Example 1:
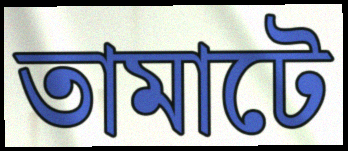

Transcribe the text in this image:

তামাটে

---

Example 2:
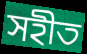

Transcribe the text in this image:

সহীত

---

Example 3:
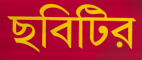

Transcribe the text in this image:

ছবিটির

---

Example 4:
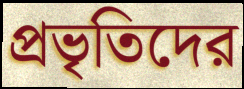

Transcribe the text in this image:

প্রভৃতিদের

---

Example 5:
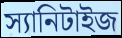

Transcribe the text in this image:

স্যানিটাইজ